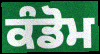
ਕੰਡੋਮ